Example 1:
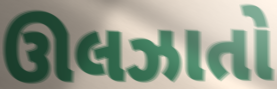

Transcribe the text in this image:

ઊલઝાતો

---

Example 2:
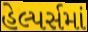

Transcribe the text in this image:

હેલ્પર્સમાં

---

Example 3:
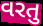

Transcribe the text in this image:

વરતુ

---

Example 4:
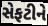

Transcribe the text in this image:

સેફટીને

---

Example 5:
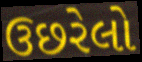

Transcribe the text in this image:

ઉછરેલો